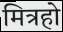
मित्रहो